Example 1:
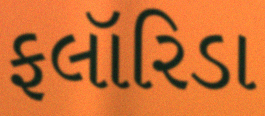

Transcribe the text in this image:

ફલૉરિડા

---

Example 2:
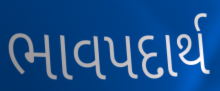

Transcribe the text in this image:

ભાવપદાર્થ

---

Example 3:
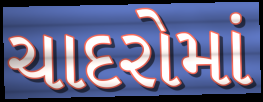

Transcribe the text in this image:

ચાદરોમાં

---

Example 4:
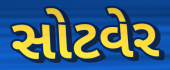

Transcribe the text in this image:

સોટવેર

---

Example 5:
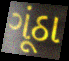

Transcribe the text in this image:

ગૂંઠા